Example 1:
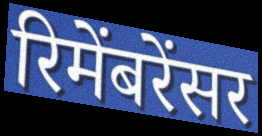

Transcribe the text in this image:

रिमेंबरेंसर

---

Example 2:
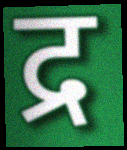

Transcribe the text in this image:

द्र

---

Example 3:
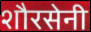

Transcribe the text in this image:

शौरसेनी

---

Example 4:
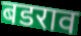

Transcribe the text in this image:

बडराव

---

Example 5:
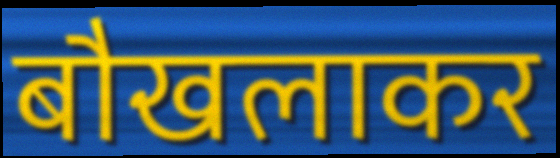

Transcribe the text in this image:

बौखलाकर